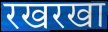
रखरखा